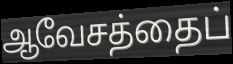
ஆவேசத்தைப்